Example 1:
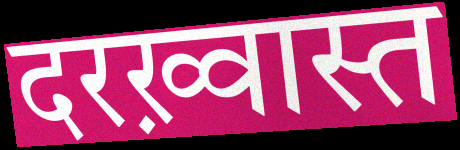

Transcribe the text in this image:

दरख़्वास्त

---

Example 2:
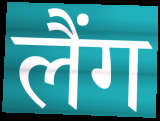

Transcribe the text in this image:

लैंग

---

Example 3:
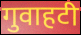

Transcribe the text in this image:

गुवाहटी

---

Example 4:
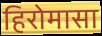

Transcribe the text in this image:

हिरोमासा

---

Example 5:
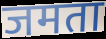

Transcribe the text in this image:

जमता